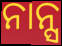
ନାନ୍ସ